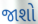
જાશો